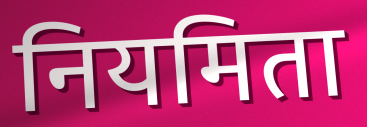
नियमिता